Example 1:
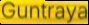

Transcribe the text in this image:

Guntraya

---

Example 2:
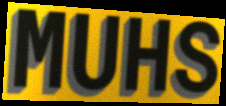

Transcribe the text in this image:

MUHS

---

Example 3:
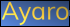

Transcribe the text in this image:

Ayaro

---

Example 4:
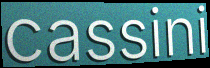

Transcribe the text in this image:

cassini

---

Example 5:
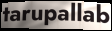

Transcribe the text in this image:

tarupallab